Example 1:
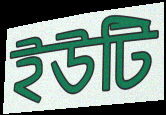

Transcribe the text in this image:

ইউটি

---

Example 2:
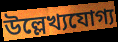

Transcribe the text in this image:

উল্লেখ্যযোগ্য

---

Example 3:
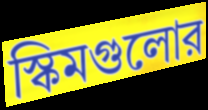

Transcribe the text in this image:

স্কিমগুলোর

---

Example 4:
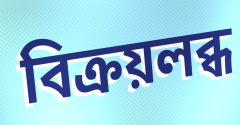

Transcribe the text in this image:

বিক্রয়লব্ধ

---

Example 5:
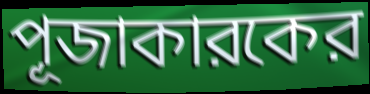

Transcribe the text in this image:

পূজাকারকের